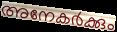
അനേകർക്കും